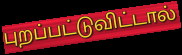
புறப்பட்டுவிட்டால்